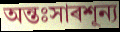
অন্তঃসাৰশূন্য